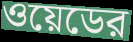
ওয়েডের